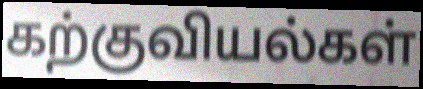
கற்குவியல்கள்